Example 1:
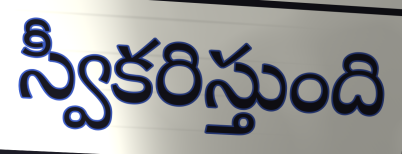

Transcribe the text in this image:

స్వీకరిస్తుంది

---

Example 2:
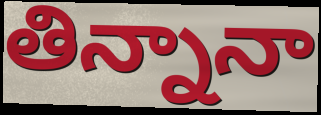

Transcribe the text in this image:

తిన్నానా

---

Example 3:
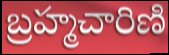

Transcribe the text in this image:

బ్రహ్మచారిణి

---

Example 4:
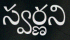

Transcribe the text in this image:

స్వర్ణని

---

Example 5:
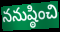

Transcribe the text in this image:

ననుష్ఠించి